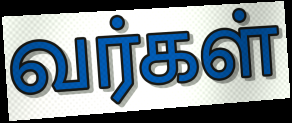
வர்கள்